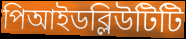
পিআইডব্লিউটিটি